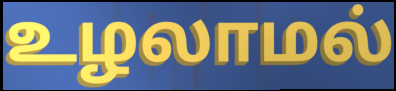
உழலாமல்